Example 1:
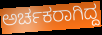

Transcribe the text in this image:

ಅರ್ಚಕರಾಗಿದ್ದ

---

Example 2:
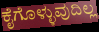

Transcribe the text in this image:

ಕೈಗೊಳ್ಳುವುದಿಲ್ಲ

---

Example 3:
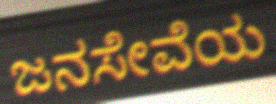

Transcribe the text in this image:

ಜನಸೇವೆಯ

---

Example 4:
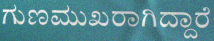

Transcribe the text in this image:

ಗುಣಮುಖರಾಗಿದ್ದಾರೆ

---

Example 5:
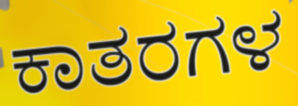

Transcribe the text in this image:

ಕಾತರಗಳ